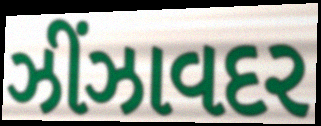
ઝીંઝાવદર